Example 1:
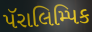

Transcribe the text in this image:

પૅરાલિમ્પિક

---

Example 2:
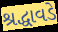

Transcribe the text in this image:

શ્રદ્ધાવડે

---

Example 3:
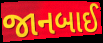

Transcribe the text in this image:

જાનબાઈ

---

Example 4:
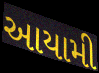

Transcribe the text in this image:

આયામી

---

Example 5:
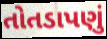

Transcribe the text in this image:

તોતડાપણું